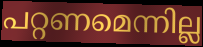
പറ്റണമെന്നില്ല